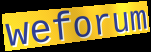
weforum